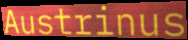
Austrinus